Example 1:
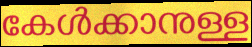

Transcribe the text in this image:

കേൾക്കാനുള്ള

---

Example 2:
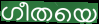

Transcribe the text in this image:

ഗീതയെ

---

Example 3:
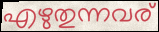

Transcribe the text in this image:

എഴുതുന്നവര്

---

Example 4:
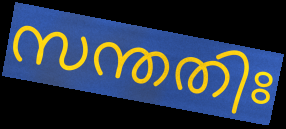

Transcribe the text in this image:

സന്തതിഃ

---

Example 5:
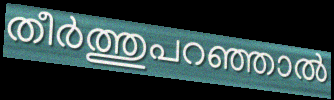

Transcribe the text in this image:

തീർത്തുപറഞ്ഞാൽ